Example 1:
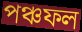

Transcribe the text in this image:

পঞ্চফল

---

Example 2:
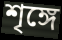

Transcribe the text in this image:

শৃঙ্গে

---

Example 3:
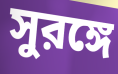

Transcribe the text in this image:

সুরঙ্গে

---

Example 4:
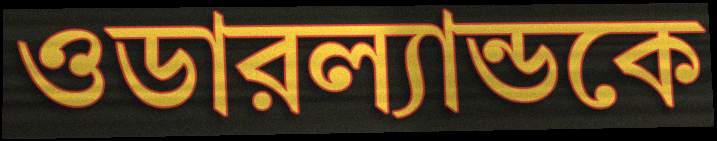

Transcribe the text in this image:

ওডারল্যান্ডকে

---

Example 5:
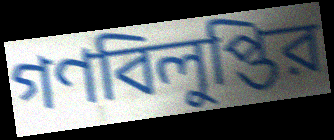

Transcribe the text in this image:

গণবিলুপ্তির